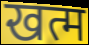
खत्‍म